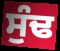
ਸੁੰਢ